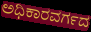
ಅಧಿಕಾರವರ್ಗದ